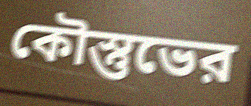
কৌস্তুভের